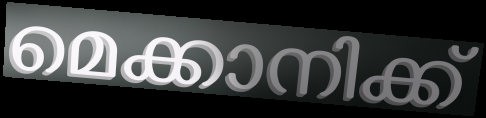
മെക്കാനിക്ക്